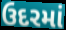
ઉદરમાં